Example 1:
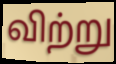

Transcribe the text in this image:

விற்று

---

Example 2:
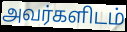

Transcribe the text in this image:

அவர்களிடம்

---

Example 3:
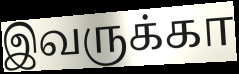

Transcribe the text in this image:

இவருக்கா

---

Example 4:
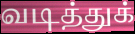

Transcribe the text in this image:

வடித்துக்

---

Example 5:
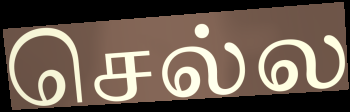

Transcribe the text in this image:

செல்ல